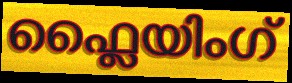
ഫ്ലൈയിംഗ്